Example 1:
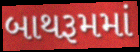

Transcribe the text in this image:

બાથરૂમમાં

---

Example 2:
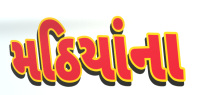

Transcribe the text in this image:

મઠિયાંના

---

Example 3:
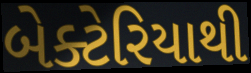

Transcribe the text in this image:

બેક્ટેરિયાથી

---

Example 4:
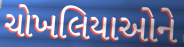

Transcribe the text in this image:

ચોખલિયાઓને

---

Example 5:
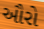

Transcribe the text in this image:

ઔરો